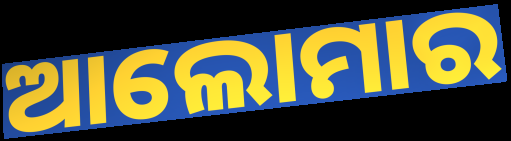
ଆଲୋମାର